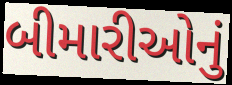
બીમારીઓનું